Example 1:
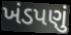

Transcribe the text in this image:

ખંડપણું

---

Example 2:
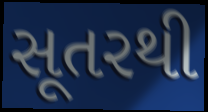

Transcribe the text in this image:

સૂતરથી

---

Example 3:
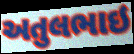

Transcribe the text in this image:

અતુલભાઇ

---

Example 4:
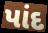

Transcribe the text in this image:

પાંદ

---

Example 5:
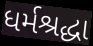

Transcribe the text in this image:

ધર્મશ્રદ્ધા